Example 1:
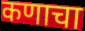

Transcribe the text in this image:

कणाचा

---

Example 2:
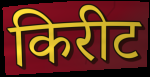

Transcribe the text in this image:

किरीट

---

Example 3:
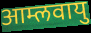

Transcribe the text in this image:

आम्लवायु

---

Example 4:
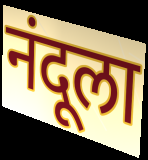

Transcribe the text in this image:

नंदूला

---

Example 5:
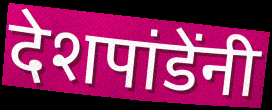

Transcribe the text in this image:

देशपांडेंनी